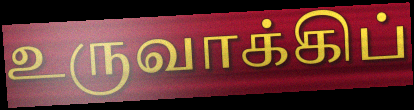
உருவாக்கிப்